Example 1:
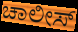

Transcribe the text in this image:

ಚಾಲೀಸ್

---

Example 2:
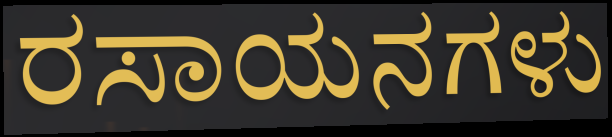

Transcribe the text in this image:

ರಸಾಯನಗಳು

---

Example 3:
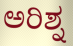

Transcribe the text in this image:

ಅರಿಶ್ನ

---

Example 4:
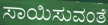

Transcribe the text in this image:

ಸಾಯಿಸುವಂತೆ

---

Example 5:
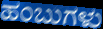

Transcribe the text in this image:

ಹಂಬುಗಳು